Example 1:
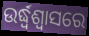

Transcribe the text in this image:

ଉର୍ଦ୍ଧ୍ଵଶ୍ୱାସରେ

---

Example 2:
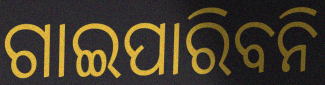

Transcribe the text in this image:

ଗାଇପାରିବନି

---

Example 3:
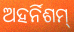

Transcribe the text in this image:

ଅହର୍ନିଶମ୍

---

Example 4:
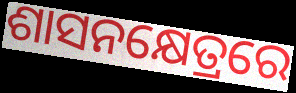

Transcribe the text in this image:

ଶାସନକ୍ଷେତ୍ରରେ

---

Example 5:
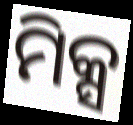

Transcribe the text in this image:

ମିକ୍ସ